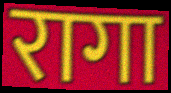
रागा